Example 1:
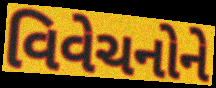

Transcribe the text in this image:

વિવેચનોને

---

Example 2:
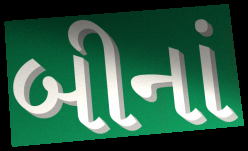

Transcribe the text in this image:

બીનાં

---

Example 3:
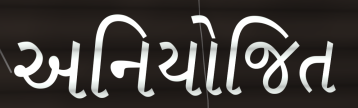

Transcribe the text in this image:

અનિયોજિત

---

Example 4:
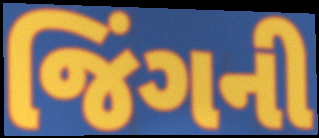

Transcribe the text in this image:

જિંગની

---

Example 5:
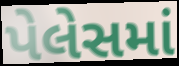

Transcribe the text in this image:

પેલેસમાં